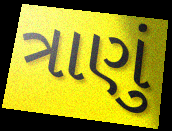
ત્રાણું